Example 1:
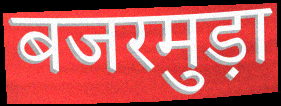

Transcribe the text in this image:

बजरमुड़ा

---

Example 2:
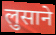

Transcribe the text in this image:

लुसाने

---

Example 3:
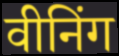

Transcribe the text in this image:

वीनिंग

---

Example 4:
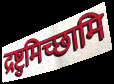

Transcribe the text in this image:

द्रष्टुमिच्छामि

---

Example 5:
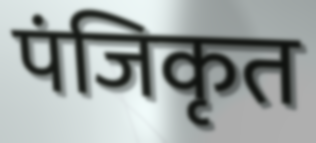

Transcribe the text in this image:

पंजिकृत